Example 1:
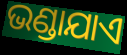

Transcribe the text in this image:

ଭଣ୍ଡାଯାଏ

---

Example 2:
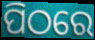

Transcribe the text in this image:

ପିଠରେ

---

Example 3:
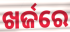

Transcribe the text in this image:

ଖର୍ଜରେ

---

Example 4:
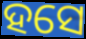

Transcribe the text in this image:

ହସେ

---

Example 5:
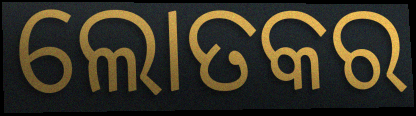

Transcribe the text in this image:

ଲୋତକର